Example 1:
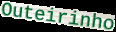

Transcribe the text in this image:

Outeirinho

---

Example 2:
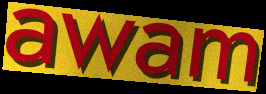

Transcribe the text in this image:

awam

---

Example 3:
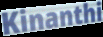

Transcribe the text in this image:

Kinanthi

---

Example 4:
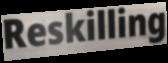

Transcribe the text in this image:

Reskilling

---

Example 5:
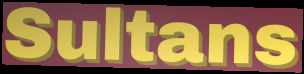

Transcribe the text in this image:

Sultans